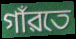
গাঁৱতে